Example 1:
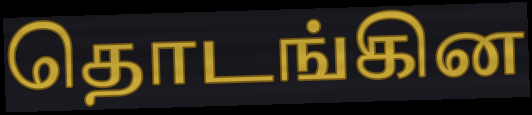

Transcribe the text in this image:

தொடங்கின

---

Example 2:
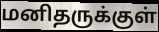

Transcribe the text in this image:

மனிதருக்குள்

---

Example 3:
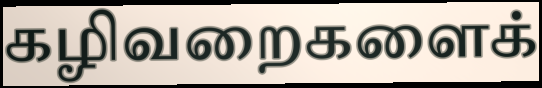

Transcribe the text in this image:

கழிவறைகளைக்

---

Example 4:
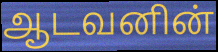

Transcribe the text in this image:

ஆடவனின்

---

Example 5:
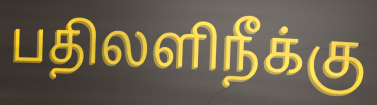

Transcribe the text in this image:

பதிலளிநீக்கு